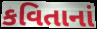
કવિતાનાં